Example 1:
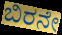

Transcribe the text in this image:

ಬಿರನೇ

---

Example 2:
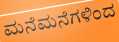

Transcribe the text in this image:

ಮನೆಮನೆಗಳಿಂದ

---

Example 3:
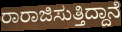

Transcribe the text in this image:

ರಾರಾಜಿಸುತ್ತಿದ್ದಾನೆ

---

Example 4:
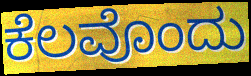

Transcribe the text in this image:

ಕೆಲವೊಂದು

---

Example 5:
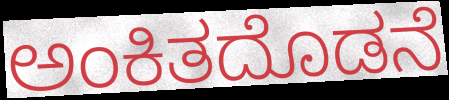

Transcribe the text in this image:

ಅಂಕಿತದೊಡನೆ